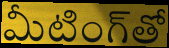
మీటింగ్‌తో